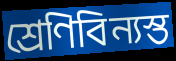
শ্রেণিবিন্যস্ত